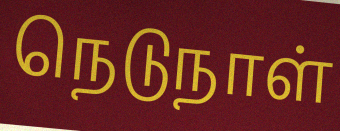
நெடுநாள்